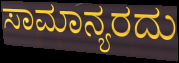
ಸಾಮಾನ್ಯರದು